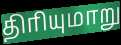
திரியுமாறு